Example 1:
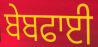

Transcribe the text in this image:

ਬੇਬਫਾਈ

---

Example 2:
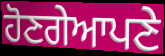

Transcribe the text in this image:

ਹੋਣਗੇਆਪਣੇ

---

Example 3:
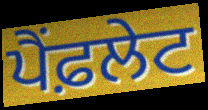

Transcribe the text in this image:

ਪੈਂਫ਼ਲੇਟ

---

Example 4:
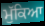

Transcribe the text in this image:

ਮੁੱਕਿਆ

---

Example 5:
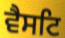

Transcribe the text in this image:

ਵੈਸਟਿ